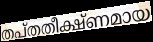
തപ്തതീക്ഷ്ണമായ